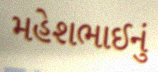
મહેશભાઈનું